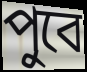
পুবে